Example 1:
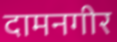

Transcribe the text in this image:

दामनगीर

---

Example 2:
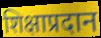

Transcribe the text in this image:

शिक्षाप्रदान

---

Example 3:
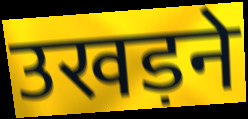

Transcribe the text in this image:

उखड़ने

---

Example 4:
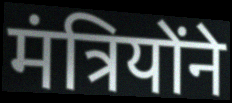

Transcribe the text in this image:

मंत्रियोंने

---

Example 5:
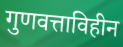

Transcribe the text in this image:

गुणवत्ताविहीन